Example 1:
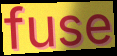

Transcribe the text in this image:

fuse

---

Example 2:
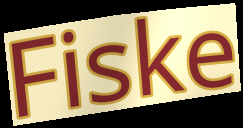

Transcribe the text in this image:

Fiske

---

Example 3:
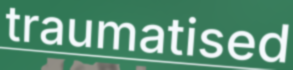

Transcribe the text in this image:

traumatised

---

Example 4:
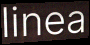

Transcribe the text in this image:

linea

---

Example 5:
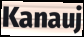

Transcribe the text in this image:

Kanauj